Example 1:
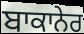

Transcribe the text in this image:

ਬਾਕਾਨੇਰ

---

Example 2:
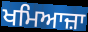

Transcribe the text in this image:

ਖਮਿਆਜ਼ਾ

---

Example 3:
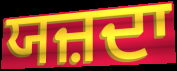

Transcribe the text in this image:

ਯਜ਼ਦਾ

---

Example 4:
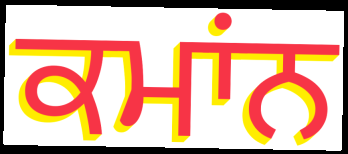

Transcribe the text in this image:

ਕਮਾਂਨ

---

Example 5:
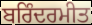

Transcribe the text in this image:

ਬਰਿੰਦਰਮੀਤ